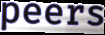
peers